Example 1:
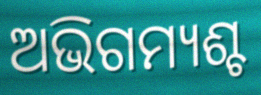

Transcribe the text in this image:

ଅଭିଗମ୍ୟଶ୍ଚ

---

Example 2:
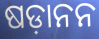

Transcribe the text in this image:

ଷଡ଼ାନନ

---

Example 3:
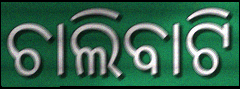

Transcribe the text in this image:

ଚାଲିବାଟି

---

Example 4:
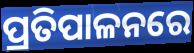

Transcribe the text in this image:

ପ୍ରତିପାଳନରେ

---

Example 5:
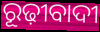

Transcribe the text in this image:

ରୂଢ଼ୀବାଦୀ